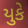
યુકે